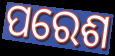
ପରେଶ